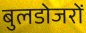
बुलडोजरों